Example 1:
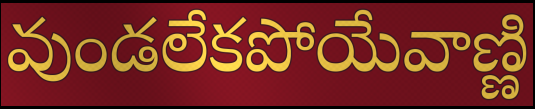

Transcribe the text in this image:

వుండలేకపోయేవాణ్ణి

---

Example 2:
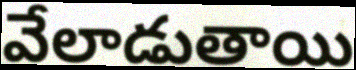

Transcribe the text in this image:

వేలాడుతాయి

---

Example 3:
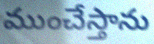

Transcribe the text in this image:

ముంచేస్తాను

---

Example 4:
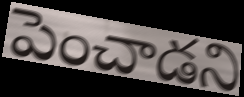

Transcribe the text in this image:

పెంచాడని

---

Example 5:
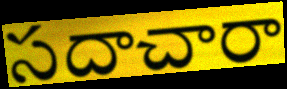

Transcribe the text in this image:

సదాచారా